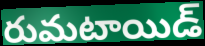
రుమటాయిడ్